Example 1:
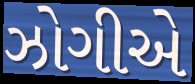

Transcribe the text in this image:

ઝોગીએ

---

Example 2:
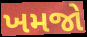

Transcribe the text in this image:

ખમજો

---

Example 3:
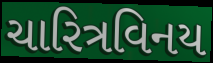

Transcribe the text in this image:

ચારિત્રવિનય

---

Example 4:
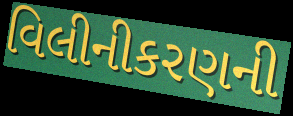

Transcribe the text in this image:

વિલીનીકરણની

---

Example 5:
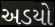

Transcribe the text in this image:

અડયો